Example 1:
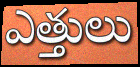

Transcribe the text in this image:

ఎత్తులు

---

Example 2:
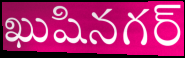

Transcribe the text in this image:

ఖుషినగర్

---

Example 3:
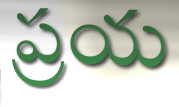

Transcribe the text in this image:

ప్రయ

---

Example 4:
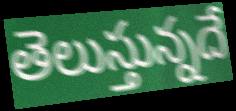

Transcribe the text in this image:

తెలుస్తున్నదే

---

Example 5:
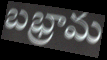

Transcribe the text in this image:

బభ్రామ